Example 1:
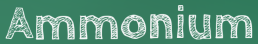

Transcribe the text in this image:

Ammonium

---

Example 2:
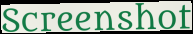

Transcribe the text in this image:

Screenshot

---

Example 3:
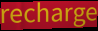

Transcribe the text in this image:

recharge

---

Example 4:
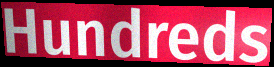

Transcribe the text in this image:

Hundreds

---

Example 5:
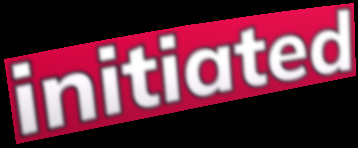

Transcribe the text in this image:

initiated